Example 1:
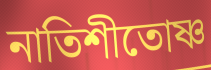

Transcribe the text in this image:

নাতিশীতোষ্ণ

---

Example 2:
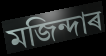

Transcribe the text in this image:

মজিন্দাৰ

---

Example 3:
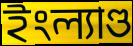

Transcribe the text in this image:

ইংল্যাণ্ড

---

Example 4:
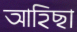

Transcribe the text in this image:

আহিছা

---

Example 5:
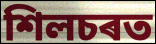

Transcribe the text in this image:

শিলচৰত